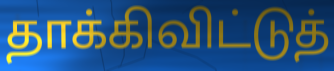
தாக்கிவிட்டுத்